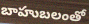
బాహుబలంతో